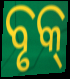
ବୃକ୍